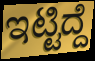
ಇಟ್ಟಿದ್ದೆ